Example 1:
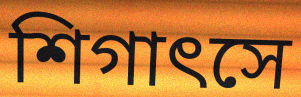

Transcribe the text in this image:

শিগাৎসে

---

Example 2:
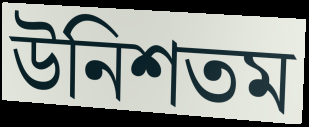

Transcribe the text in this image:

উনিশতম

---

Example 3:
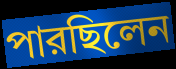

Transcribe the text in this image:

পারছিলেন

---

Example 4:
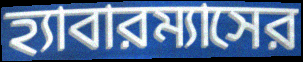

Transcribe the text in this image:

হ্যাবারম্যাসের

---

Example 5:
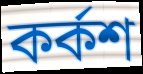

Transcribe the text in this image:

কর্কশ